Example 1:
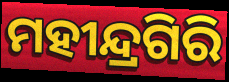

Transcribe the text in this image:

ମହୀନ୍ଦ୍ରଗିରି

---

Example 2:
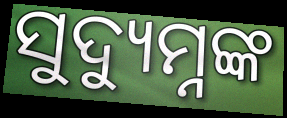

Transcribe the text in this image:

ସୁଦ୍ୟୁମ୍ନଙ୍କ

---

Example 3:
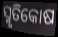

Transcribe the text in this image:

ସ୍ମୃତିକୋଷ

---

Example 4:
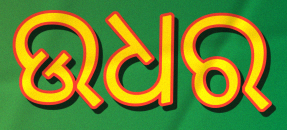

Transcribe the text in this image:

ଉଧର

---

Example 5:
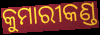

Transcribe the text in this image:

କୁମାରୀକଣ୍ଡ